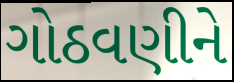
ગોઠવણીને